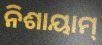
ନିଶାୟାମ୍